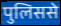
पुलिससे